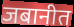
जबानीत